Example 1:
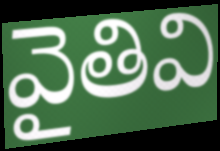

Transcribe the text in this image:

వైతివి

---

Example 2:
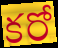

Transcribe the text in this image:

కరో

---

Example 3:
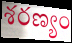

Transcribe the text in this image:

శరణ్యం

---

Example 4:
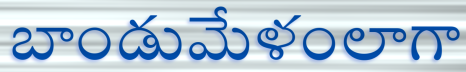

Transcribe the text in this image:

బాండుమేళంలాగా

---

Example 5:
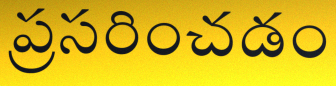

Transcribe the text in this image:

ప్రసరించడం